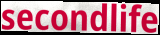
secondlife